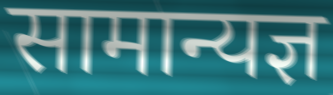
सामान्यज्ञ